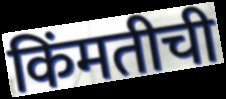
किंमतीची